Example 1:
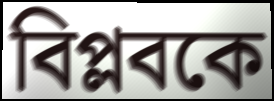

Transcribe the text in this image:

বিপ্লবকে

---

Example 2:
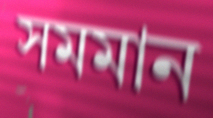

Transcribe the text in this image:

সমমান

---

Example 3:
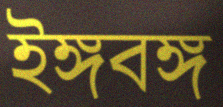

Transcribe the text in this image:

ইঙ্গবঙ্গ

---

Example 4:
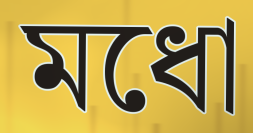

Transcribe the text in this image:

মধো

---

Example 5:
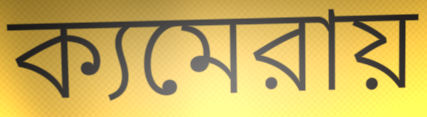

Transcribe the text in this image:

ক্যমেরায়